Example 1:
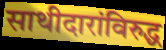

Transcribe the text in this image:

साथीदारांविरुद्ध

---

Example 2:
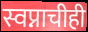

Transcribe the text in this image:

स्वप्नाचीही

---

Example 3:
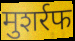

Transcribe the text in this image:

मुशर्रफ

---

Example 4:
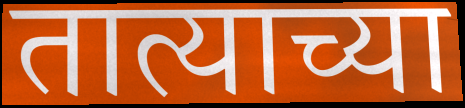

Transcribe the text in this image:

तात्याच्या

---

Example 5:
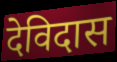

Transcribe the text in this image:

देविदास